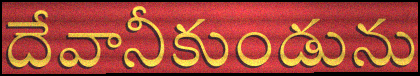
దేవానీకుండును